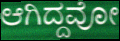
ಆಗಿದ್ದವೋ